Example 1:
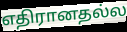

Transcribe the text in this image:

எதிரானதல்ல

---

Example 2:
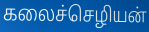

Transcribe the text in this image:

கலைச்செழியன்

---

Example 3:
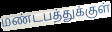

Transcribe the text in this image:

மண்டபத்துக்குள்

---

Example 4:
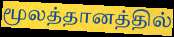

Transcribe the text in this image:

மூலத்தானத்தில்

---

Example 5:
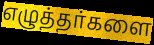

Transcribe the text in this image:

எழுத்தர்களை